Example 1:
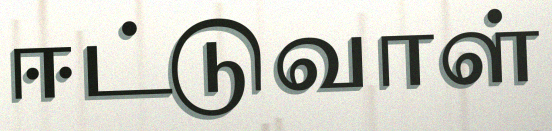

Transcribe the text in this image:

ஈட்டுவாள்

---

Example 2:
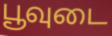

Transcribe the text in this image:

பூவுடை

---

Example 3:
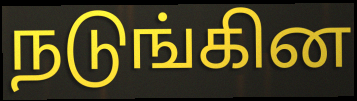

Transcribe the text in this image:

நடுங்கின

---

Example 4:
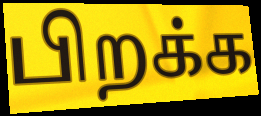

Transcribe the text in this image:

பிறக்க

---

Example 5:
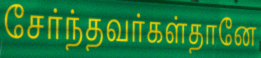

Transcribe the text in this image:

சேர்ந்தவர்கள்தானே